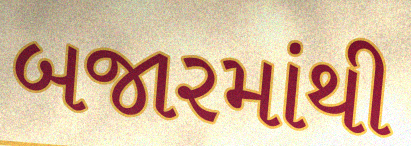
બજારમાંથી